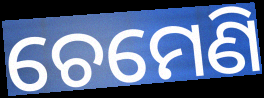
ଚେମେଣି